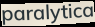
paralytica